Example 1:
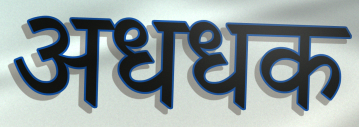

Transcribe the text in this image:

अधधक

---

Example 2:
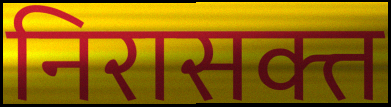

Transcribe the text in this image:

निरासक्त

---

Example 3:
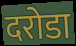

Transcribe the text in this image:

दरोडा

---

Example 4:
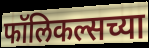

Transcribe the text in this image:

फॉलिकल्सच्या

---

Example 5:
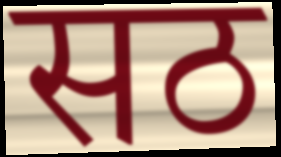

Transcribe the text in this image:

सठ